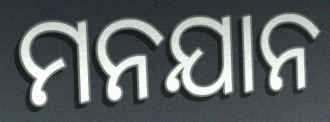
ମନଯାନ